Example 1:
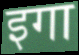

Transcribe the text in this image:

इगा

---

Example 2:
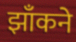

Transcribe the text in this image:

झाँकने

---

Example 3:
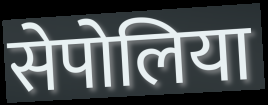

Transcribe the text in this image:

सेपोलिया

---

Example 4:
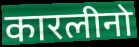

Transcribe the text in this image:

कारलीनो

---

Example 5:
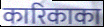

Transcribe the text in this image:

कारिकाका